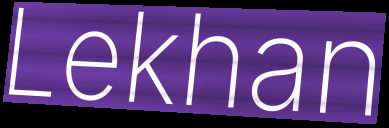
Lekhan